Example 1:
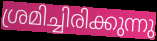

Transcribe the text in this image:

ശ്രമിച്ചിരിക്കുന്നു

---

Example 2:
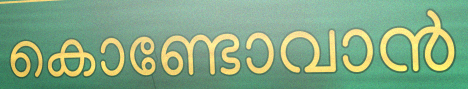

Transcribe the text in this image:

കൊണ്ടോവാൻ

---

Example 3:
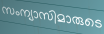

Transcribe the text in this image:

സംന്യാസിമാരുടെ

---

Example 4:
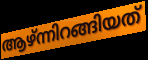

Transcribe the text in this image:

ആഴ്ന്നിറങ്ങിയത്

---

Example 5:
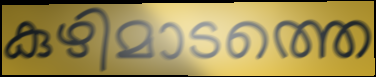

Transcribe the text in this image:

കുഴിമാടത്തെ